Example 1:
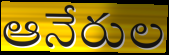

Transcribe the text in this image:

ఆనేరుల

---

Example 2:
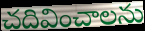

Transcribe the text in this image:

చదివించాలను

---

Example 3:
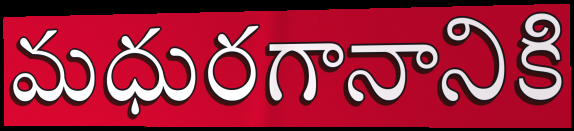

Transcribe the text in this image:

మధురగానానికి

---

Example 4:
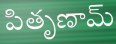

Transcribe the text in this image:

పితృణామ్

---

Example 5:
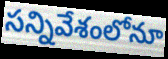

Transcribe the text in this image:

సన్నివేశంలోనూ